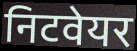
निटवेयर